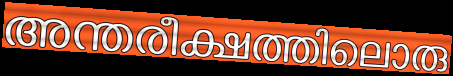
അന്തരീക്ഷത്തിലൊരു